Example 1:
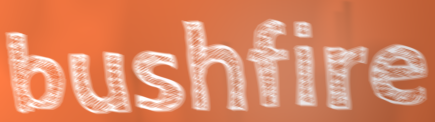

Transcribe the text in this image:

bushfire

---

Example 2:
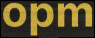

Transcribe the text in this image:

opm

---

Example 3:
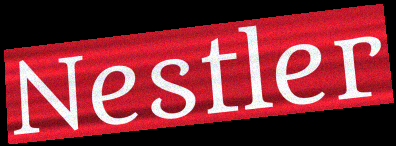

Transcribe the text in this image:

Nestler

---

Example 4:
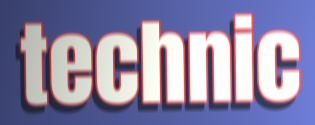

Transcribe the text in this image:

technic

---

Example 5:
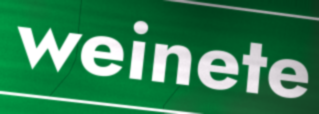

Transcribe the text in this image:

weinete